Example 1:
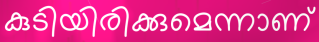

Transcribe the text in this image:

കുടിയിരിക്കുമെന്നാണ്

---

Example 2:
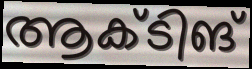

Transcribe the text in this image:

ആക്ടിങ്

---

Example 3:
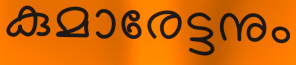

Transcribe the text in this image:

കുമാരേട്ടനും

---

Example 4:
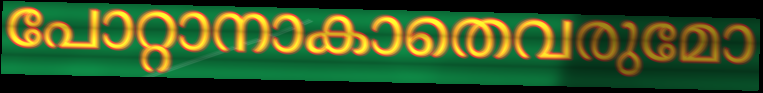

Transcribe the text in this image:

പോറ്റാനാകാതെവരുമോ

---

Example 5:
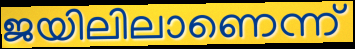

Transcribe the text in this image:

ജയിലിലാണെന്ന്